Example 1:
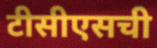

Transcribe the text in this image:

टीसीएसची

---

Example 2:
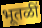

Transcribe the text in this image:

भूतळीं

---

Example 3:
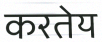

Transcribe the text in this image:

करतेय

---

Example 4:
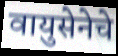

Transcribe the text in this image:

वायुसेनेचे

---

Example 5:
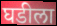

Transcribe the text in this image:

घडीला